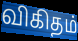
விகிதம்